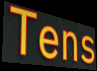
Tens